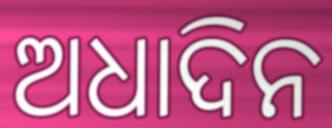
ଅଧାଦିନ